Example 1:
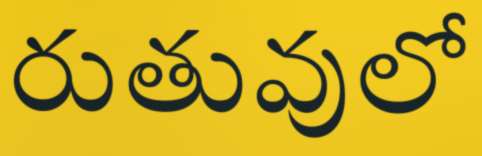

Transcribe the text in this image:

రుతువులో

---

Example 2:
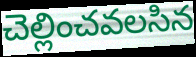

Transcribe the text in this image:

చెల్లించవలసిన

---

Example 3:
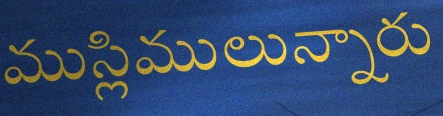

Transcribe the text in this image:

ముస్లిములున్నారు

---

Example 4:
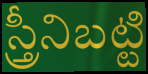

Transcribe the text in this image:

స్త్రీనిబట్టి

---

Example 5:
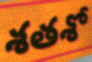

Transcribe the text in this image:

శతశో